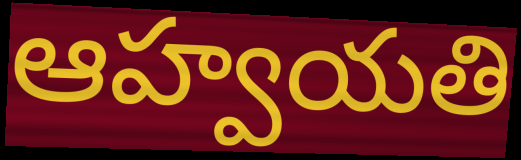
ఆహ్వయతి